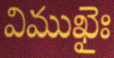
విముఖైః